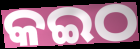
କଇଠ